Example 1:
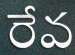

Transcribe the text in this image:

రేవ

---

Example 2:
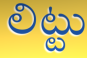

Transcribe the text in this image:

లిట్టు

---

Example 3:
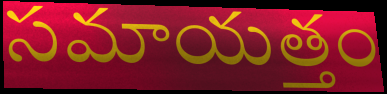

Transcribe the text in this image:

సమాయత్తం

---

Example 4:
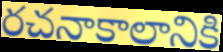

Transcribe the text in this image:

రచనాకాలానికి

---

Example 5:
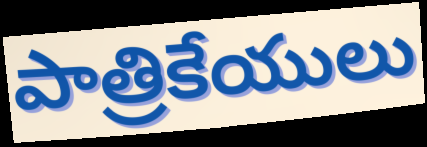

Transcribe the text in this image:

పాత్రికేయులు